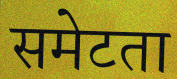
समेटता